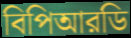
বিপিআরডি